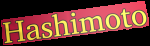
Hashimoto